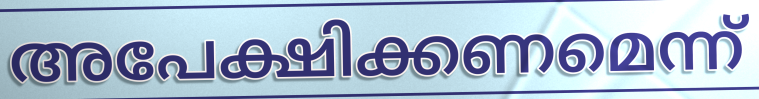
അപേക്ഷിക്കണമെന്ന്